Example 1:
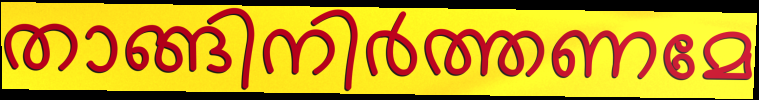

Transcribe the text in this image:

താങ്ങിനിർത്തണമേ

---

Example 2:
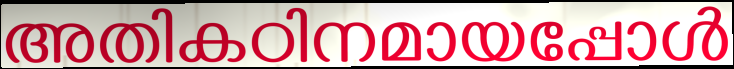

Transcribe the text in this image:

അതികഠിനമായപ്പോൾ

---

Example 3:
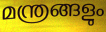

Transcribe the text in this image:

മന്ത്രങ്ങളും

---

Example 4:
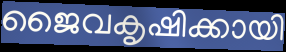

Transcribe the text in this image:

ജൈവകൃഷിക്കായി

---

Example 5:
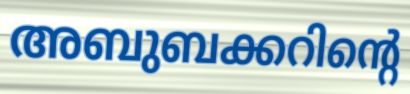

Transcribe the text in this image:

അബുബക്കറിന്റെ